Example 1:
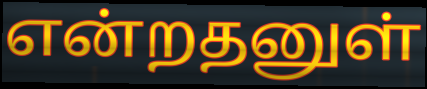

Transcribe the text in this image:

என்றதனுள்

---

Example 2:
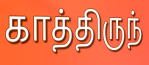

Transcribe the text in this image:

காத்திருந்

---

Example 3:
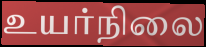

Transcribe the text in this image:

உயர்நிலை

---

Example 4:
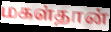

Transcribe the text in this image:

மகள்தான்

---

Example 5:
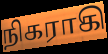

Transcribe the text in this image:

நிகராகி